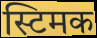
स्टिमक